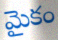
మైకం